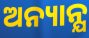
ଅନ୍ୟାନ୍ଯ